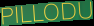
PILLODU